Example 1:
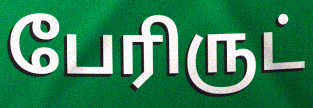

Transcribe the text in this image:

பேரிருட்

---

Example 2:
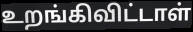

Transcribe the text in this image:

உறங்கிவிட்டாள்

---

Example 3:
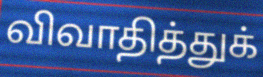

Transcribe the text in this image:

விவாதித்துக்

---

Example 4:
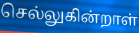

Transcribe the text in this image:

செல்லுகின்றாள்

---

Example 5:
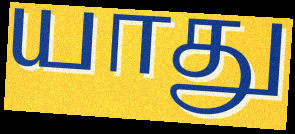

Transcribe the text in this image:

யாது